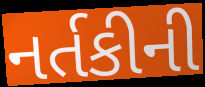
નર્તકીની